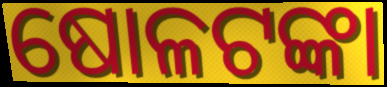
ଷୋଳଟଙ୍କା